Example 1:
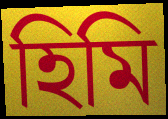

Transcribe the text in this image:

হিমি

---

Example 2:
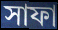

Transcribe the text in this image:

সাফা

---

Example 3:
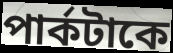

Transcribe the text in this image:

পার্কটাকে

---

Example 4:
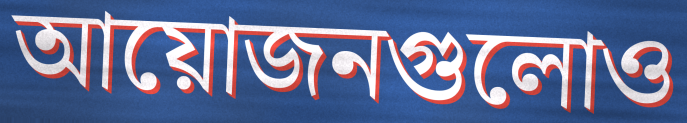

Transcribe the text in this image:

আয়োজনগুলোও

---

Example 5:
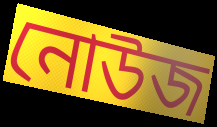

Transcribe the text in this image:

নোউজ